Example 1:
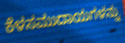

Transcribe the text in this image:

ಕೆಳಸಮುದಾಯಗಳನ್ನು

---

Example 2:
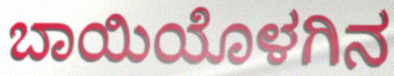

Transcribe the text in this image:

ಬಾಯಿಯೊಳಗಿನ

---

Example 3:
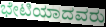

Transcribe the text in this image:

ಭೇಟಿಯಾದವರು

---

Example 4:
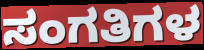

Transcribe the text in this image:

ಸಂಗತಿಗಳ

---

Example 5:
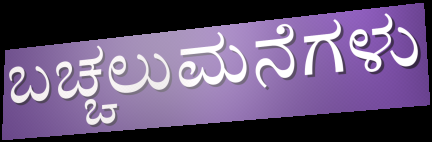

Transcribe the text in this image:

ಬಚ್ಚಲುಮನೆಗಳು